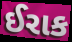
ઈરાક